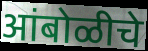
आंबोळीचे